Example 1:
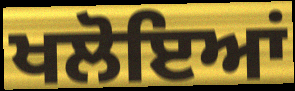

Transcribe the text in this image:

ਖਲੋਇਆਂ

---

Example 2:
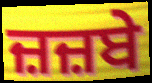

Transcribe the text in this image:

ਜ਼ਜ਼ਬੇ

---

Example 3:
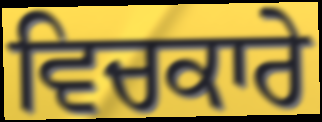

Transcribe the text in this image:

ਵਿਚਕਾਰੇ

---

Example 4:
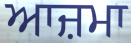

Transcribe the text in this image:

ਆਜ਼ਮਾ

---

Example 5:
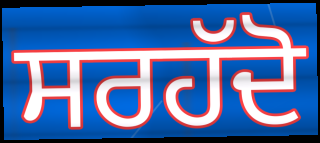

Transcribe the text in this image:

ਸਰਹੱਦੋ